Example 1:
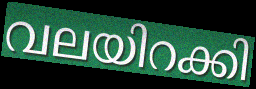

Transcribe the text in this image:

വലയിറക്കി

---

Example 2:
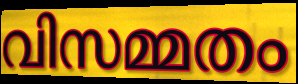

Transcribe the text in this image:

വിസമ്മതം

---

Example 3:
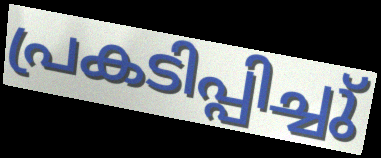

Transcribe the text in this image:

പ്രകടിപ്പിച്ചു്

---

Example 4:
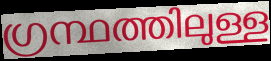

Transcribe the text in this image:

ഗ്രന്ഥത്തിലുള്ള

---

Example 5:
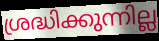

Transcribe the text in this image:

ശ്രദ്ധിക്കുന്നില്ല